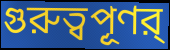
গুরুত্বপূণর্